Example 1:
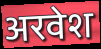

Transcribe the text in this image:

अरवेश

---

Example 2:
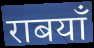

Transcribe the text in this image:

राबयाँ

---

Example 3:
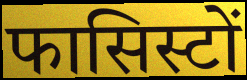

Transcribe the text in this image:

फासिस्टों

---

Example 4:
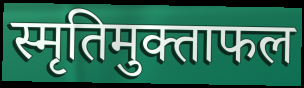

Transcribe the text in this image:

स्मृतिमुक्ताफल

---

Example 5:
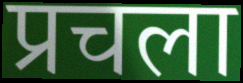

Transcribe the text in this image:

प्रचला